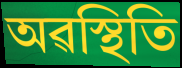
অৱস্থিতি